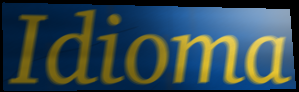
Idioma